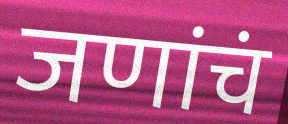
जणांचं